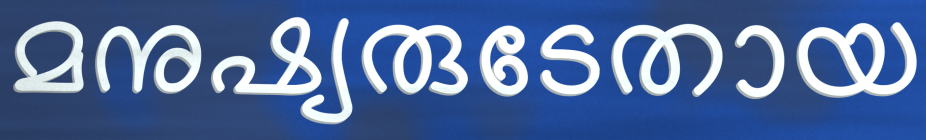
മനുഷ്യരുടേതായ